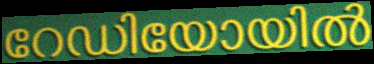
റേഡിയോയിൽ